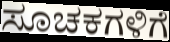
ಸೂಚಕಗಳಿಗೆ